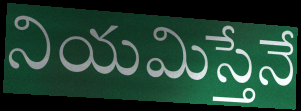
నియమిస్తేనే